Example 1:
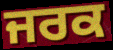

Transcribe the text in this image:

ਜਰਕ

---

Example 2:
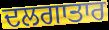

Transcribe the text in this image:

ਦਲਗਾਤਾਰ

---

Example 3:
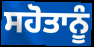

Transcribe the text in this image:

ਸਹੋਤਾਨੂੰ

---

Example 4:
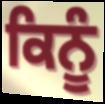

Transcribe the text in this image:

ਕਿਨੂੰ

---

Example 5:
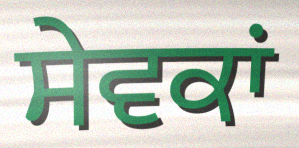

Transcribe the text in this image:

ਸੇਵਕਾਂ